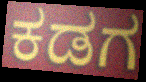
ಕಡಗ